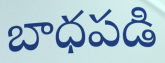
బాధపడి